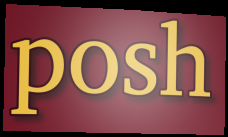
posh